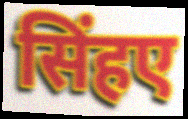
सिंहए